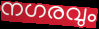
നഗരവും